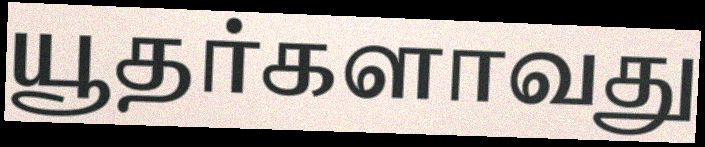
யூதர்களாவது